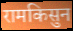
रामकिसुन